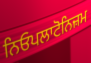
ਨਿਓਪਲਾਟੋਨਿਜ਼ਮ